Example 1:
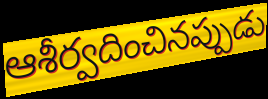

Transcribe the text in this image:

ఆశీర్వదించినప్పుడు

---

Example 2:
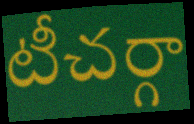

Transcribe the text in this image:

టీచర్గా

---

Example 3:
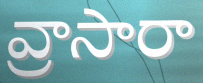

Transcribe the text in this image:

వ్రాసారా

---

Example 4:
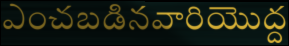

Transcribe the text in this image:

ఎంచబడినవారియొద్ద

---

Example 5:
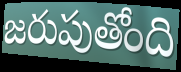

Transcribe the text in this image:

జరుపుతోంది